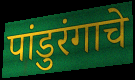
पांडुरंगाचे